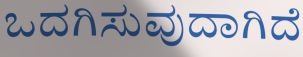
ಒದಗಿಸುವುದಾಗಿದೆ